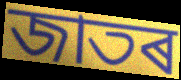
জাতৰ